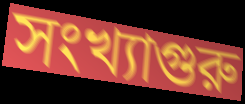
সংখ্যাগুরু